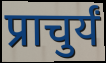
प्राचुर्यं